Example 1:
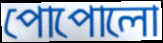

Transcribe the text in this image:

পোপোলো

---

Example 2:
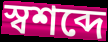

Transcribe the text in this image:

স্বশব্দে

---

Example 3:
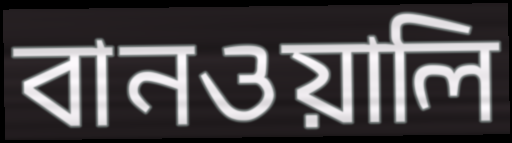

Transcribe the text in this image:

বানওয়ালি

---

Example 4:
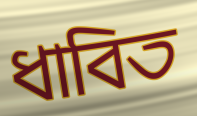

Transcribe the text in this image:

ধাবিত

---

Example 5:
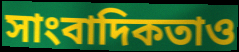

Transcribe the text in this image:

সাংবাদিকতাও